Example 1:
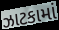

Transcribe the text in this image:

ઝાટકામાં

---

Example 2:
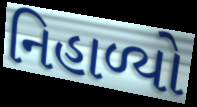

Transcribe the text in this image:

નિહાળ્યો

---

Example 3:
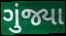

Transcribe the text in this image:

ગુંજ્યા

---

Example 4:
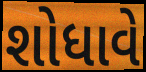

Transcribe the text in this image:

શોધાવે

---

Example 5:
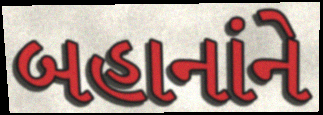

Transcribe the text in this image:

બહાનાંને